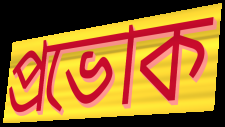
প্রভোক